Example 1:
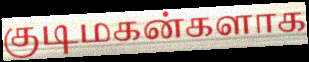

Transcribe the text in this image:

குடிமகன்களாக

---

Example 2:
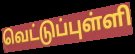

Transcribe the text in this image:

வெட்டுப்புள்ளி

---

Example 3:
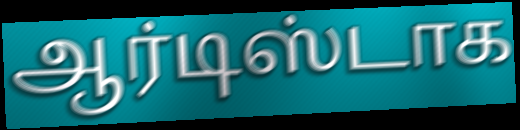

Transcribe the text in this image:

ஆர்டிஸ்டாக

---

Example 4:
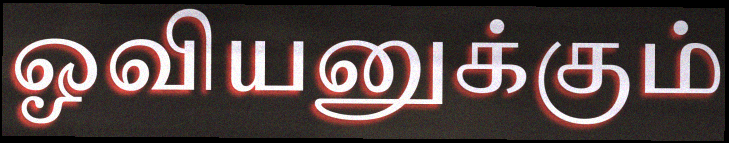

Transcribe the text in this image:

ஓவியனுக்கும்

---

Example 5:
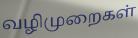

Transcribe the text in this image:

வழிமுறைகள்